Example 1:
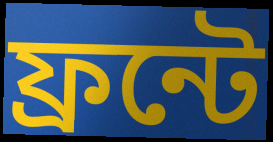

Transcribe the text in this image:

ফ্রন্টে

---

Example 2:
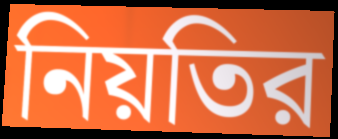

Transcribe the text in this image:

নিয়তির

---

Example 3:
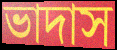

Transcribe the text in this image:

ভাদাস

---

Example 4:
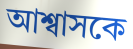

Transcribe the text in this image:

আশ্বাসকে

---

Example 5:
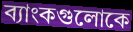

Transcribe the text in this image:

ব্যাংকগুলোকে